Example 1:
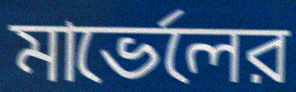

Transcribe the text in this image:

মার্ভেলের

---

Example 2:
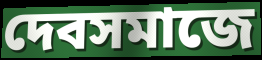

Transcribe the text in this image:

দেবসমাজে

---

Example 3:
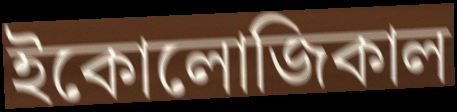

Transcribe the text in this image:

ইকোলোজিকাল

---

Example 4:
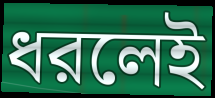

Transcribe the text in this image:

ধরলেই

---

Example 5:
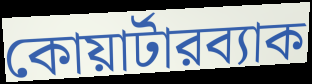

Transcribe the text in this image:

কোয়ার্টারব্যাক